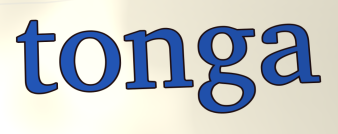
tonga